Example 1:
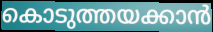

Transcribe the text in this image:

കൊടുത്തയക്കാൻ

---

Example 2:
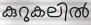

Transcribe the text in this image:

കുറുകലിൽ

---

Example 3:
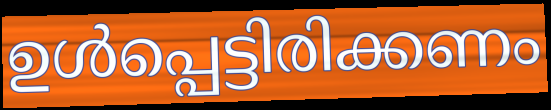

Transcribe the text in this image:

ഉൾപ്പെട്ടിരിക്കണം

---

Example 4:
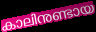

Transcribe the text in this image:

കാലിനുണ്ടായ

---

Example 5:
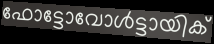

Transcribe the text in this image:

ഫോട്ടോവോൾട്ടായിക്